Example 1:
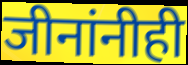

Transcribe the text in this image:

जीनांनीही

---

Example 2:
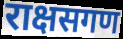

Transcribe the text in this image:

राक्षसगण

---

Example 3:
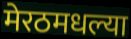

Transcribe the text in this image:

मेरठमधल्या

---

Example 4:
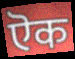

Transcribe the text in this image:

ऎक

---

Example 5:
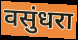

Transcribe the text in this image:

वसुंधरा